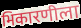
भिकारणीला